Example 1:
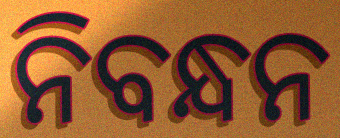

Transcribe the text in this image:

ନିବନ୍ଧନ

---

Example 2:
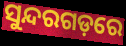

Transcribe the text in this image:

ସୁନ୍ଦରଗଡ଼ରେ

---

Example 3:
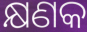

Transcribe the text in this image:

କ୍ଷଣକ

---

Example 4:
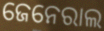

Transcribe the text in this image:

ଜେନେରାଲ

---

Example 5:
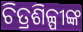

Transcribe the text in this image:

ଚିତ୍ରଶିଳ୍ପୀଙ୍କ